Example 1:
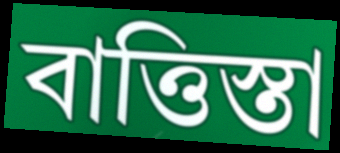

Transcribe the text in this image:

বাত্তিস্তা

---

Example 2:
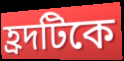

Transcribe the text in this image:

হ্রদটিকে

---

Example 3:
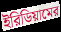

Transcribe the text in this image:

ইরিডিয়ামের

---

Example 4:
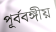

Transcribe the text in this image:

পূর্ববঙ্গীয়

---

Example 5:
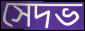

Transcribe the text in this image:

সেদভ